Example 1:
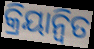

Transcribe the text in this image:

କ୍ରିୟାନ୍ୱିତ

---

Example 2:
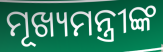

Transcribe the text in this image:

ମୂଖ୍ୟମନ୍ତ୍ରୀଙ୍କ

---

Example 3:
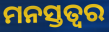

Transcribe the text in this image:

ମନସ୍ତତ୍ଵର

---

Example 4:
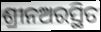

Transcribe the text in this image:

ଶ୍ରୀନଅରସ୍ଥିତ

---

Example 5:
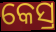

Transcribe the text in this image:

କେସ୍ର